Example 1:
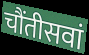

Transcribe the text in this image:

चौंतीसवां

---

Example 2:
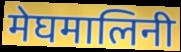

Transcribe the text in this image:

मेघमालिनी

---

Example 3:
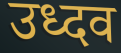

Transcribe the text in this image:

उध्दव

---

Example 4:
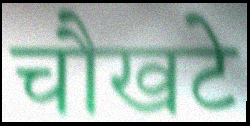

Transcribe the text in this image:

चौखटे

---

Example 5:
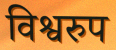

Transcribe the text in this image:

विश्वरुप